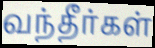
வந்தீர்கள்